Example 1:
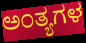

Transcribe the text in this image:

ಅಂತ್ಯಗಳ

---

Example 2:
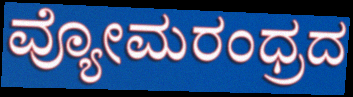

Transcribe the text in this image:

ವ್ಯೋಮರಂಧ್ರದ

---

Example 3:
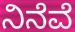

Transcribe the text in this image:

ನಿನೆವೆ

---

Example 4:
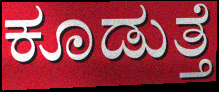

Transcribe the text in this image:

ಕೂಡುತ್ತೆ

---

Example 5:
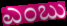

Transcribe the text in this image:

ಎಂಬು